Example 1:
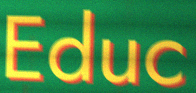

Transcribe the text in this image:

Educ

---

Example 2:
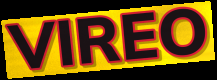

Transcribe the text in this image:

VIREO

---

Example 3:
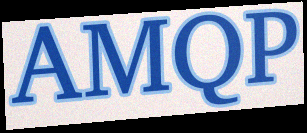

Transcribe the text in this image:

AMQP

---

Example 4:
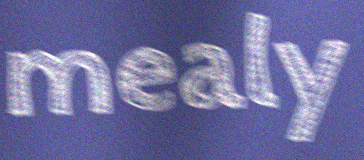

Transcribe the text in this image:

mealy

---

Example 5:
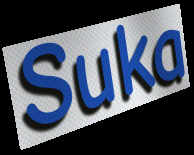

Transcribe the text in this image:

Suka